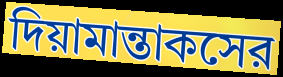
দিয়ামান্তাকসের